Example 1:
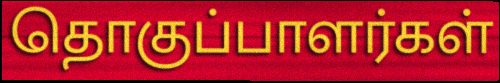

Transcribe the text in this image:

தொகுப்பாளர்கள்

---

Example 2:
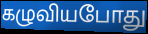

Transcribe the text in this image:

கழுவியபோது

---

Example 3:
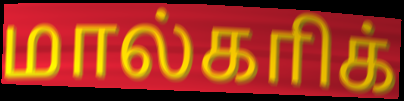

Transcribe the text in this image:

மால்கரிக்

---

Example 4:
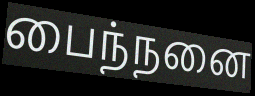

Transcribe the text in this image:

பைந்நனை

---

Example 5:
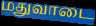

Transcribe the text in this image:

மதுவாடை